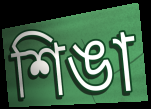
শিঙা